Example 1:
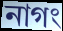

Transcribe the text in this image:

নাগং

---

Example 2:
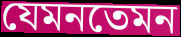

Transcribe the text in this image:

যেমনতেমন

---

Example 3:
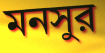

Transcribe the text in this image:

মনসুর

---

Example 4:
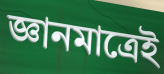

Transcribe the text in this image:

জ্ঞানমাত্রেই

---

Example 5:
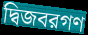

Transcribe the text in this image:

দ্বিজবরগণ